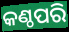
କଣ୍ଠପରି